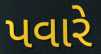
પવારે